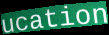
ucation